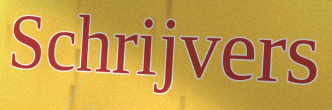
Schrijvers